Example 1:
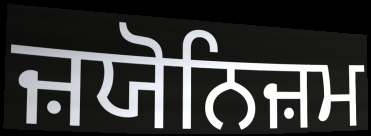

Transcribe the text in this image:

ਜ਼ਯੋਨਿਜ਼ਮ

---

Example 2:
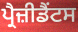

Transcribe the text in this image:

ਪ੍ਰੈਜ਼ੀਡੈਂਟਸ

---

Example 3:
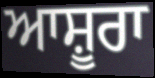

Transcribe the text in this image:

ਆਸ਼ੂਰਾ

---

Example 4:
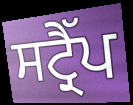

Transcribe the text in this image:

ਸਟ੍ਰੈੱਪ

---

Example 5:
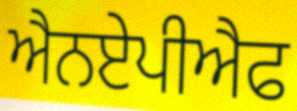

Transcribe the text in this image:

ਐਨਏਪੀਐਫ